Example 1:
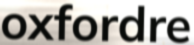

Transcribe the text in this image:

oxfordre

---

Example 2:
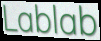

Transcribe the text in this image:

Lablab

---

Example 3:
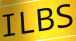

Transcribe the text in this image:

ILBS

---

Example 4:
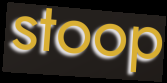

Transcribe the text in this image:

stoop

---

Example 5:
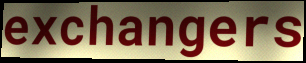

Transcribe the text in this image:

exchangers